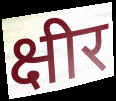
क्षीर